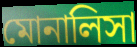
মোনালিসা